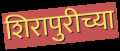
शिरापुरीच्या